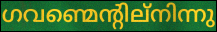
ഗവണ്മെന്റില്നിന്നു